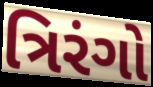
ત્રિરંગો